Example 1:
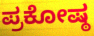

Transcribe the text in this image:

ಪ್ರಕೋಷ್ಠ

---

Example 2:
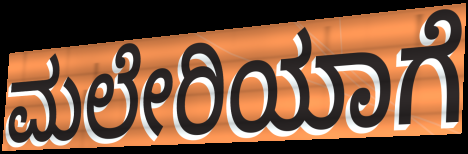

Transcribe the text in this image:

ಮಲೇರಿಯಾಗೆ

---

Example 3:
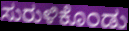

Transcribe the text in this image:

ಸುರುಳಿಕೊಂಡು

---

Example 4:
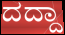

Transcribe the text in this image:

ದದ್ದಾ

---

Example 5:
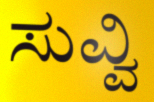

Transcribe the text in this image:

ಸುವ್ವಿ